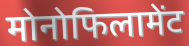
मोनोफिलामेंट